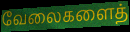
வேலைகளைத்